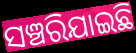
ସଞ୍ଚରିଯାଇଛି